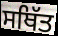
ਸਥਿੱਤ